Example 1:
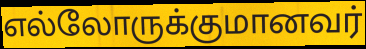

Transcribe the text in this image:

எல்லோருக்குமானவர்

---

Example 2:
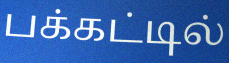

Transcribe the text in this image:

பக்கட்டில்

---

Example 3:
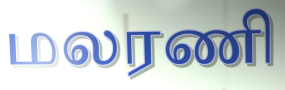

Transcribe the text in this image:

மலரணி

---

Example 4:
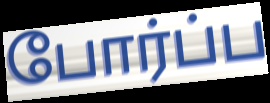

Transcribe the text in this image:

போர்ப்ப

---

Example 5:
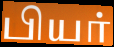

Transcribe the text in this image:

பியர்